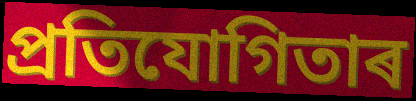
প্ৰতিযোগিতাৰ